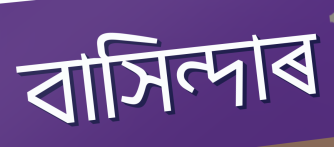
বাসিন্দাৰ